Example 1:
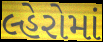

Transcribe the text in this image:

લ્હેરોમાં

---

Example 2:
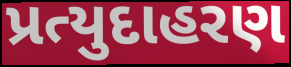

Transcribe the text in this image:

પ્રત્યુદાહરણ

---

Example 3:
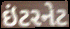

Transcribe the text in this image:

ઇંટરનેટ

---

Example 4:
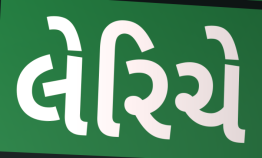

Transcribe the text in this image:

લેરિચે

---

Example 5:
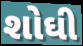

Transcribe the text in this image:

શોઘી